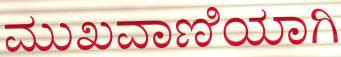
ಮುಖವಾಣಿಯಾಗಿ